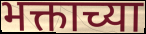
भक्ताच्या